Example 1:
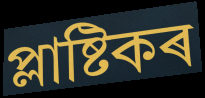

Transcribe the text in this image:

প্লাষ্টিকৰ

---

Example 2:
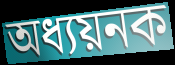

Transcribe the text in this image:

অধ্যয়নক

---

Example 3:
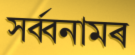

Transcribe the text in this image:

সৰ্ব্বনামৰ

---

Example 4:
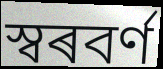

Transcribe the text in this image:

স্বৰবৰ্ণ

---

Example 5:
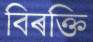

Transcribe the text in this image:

বিৰক্তি